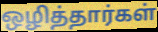
ஒழித்தார்கள்